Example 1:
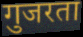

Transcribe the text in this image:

गुजरता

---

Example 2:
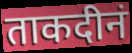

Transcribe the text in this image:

ताकदीनं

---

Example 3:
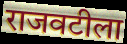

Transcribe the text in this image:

राजवटीला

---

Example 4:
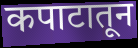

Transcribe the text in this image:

कपाटातून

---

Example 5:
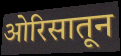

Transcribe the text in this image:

ओरिसातून